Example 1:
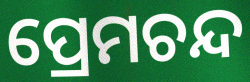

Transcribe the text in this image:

ପ୍ରେମଚନ୍ଦ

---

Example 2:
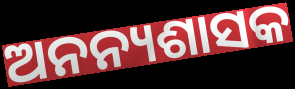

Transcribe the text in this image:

ଅନନ୍ୟଶାସକ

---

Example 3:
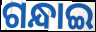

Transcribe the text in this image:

ଗନ୍ଧାଇ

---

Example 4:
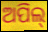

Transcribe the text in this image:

ଅପିଲ୍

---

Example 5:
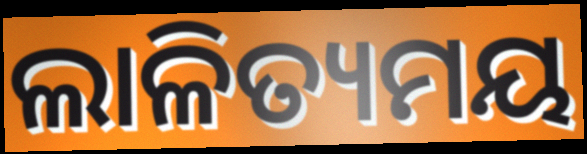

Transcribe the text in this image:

ଲାଳିତ୍ୟମୟ